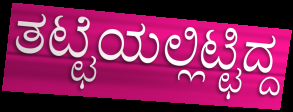
ತಟ್ಟೆಯಲ್ಲಿಟ್ಟಿದ್ದ